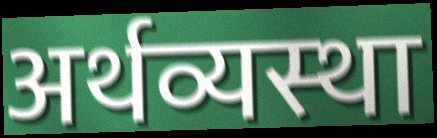
अर्थव्यस्था